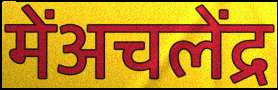
मेंअचलेंद्र